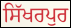
ਸਿੱਖਰਪੁਰ